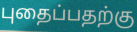
புதைப்பதற்கு